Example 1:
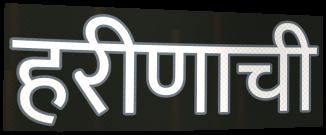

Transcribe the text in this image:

हरीणाची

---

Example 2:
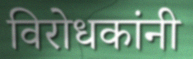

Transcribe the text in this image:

विरोधकांनी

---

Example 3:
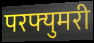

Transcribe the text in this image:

परफ्युमरी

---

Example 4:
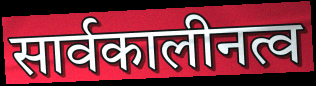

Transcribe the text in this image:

सार्वकालीनत्व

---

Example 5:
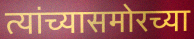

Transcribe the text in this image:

त्यांच्यासमोरच्या